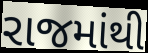
રાજમાંથી